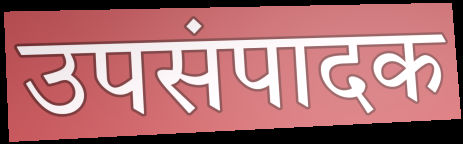
उपसंपादक